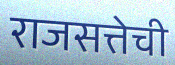
राजसत्तेची